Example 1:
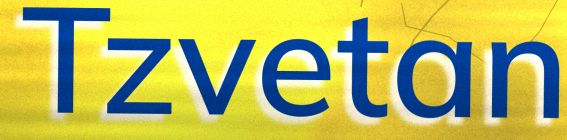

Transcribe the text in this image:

Tzvetan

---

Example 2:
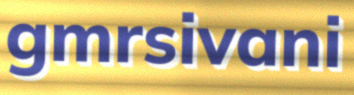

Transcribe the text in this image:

gmrsivani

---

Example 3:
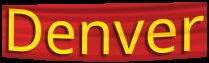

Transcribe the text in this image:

Denver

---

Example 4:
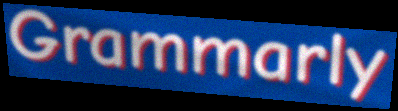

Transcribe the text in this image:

Grammarly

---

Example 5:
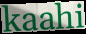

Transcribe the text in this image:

kaahi